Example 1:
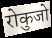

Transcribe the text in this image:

रोकुजो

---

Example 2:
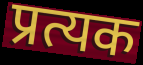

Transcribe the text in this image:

प्रत्यक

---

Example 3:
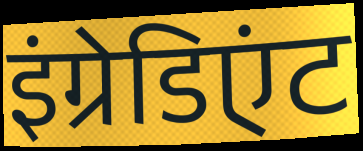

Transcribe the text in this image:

इंग्रेडिएंट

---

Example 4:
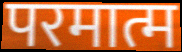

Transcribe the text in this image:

परमात्म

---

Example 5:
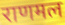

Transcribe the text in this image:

राणमल